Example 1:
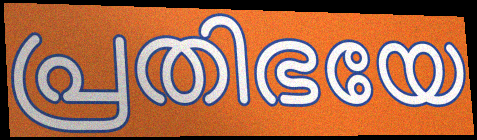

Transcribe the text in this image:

പ്രതിഭയേ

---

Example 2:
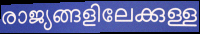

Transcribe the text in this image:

രാജ്യങ്ങളിലേക്കുള്ള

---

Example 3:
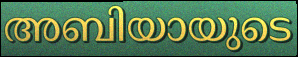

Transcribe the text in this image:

അബിയായുടെ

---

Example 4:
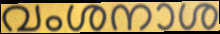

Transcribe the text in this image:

വംശനാശ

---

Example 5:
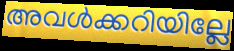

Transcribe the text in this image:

അവൾക്കറിയില്ലേ